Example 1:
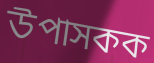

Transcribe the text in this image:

উপাসকক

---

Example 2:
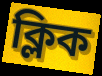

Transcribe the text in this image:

ক্লিক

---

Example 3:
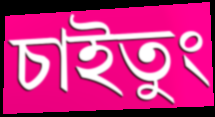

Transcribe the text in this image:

চাইতুং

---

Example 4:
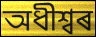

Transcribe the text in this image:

অধীশ্বৰ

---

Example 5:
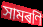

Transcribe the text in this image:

সামৰণি